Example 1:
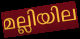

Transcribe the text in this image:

മല്ലിയില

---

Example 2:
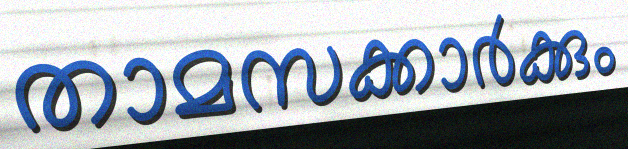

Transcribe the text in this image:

താമസക്കാർക്കും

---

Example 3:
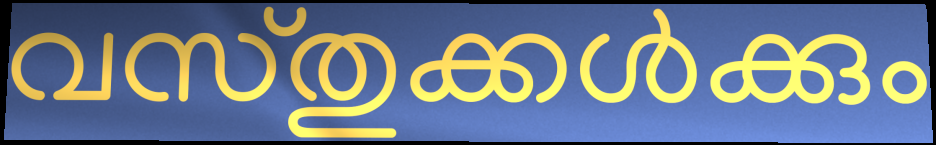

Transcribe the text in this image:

വസ്തുക്കൾക്കും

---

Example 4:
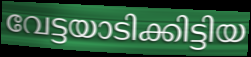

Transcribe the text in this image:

വേട്ടയാടിക്കിട്ടിയ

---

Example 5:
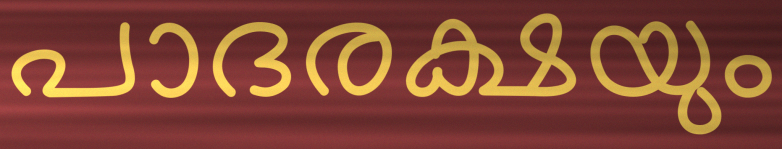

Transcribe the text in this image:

പാദരക്ഷയും